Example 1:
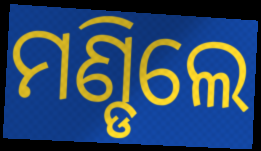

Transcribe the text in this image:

ମଣ୍ଡିଲେ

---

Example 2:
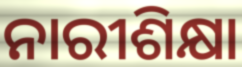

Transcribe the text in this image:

ନାରୀଶିକ୍ଷା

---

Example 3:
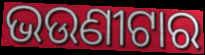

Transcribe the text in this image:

ଭଉଣୀଟାର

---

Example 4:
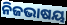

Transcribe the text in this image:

ନିଜଭାଷୟ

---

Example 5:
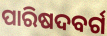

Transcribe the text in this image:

ପାରିଷଦବର୍ଗ